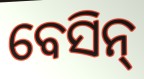
ବେସିନ୍